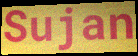
Sujan